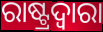
ରାଷ୍ଟ୍ରଦ୍ୱାରା